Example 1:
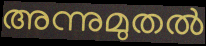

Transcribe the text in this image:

അന്നുമുതൽ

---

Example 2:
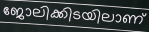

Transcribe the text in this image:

ജോലിക്കിടയിലാണ്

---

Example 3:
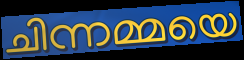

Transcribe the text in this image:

ചിന്നമ്മയെ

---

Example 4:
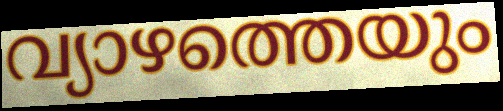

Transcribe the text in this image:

വ്യാഴത്തെയും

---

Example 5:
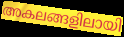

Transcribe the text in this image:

അകലങ്ങളിലായി